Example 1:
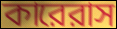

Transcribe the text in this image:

কারেরাস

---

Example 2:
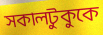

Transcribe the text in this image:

সকালটুকুকে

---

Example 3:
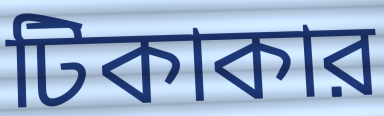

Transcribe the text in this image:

টিকাকার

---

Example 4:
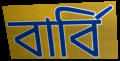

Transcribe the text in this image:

বার্বি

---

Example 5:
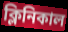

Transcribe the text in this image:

ক্লিনিকাল